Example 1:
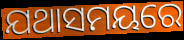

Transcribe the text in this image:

ଯଥାସମୟରେ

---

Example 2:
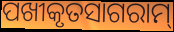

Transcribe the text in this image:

ପଖୀକୃତସାଗରାମ୍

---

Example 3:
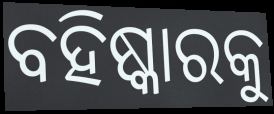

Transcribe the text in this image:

ବହିଷ୍କାରକୁ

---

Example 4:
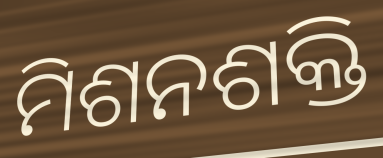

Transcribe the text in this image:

ମିଶନଶକ୍ତି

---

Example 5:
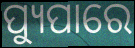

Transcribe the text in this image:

ପ୍ୟୁପାରେ